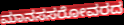
ಮಾನಸಸರೋವರದ